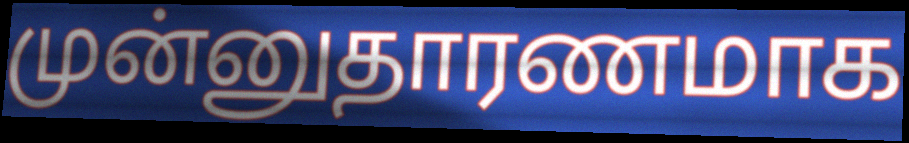
முன்னுதாரணமாக